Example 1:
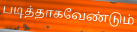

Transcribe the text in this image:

படித்தாகவேண்டும்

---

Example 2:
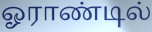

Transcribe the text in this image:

ஓராண்டில்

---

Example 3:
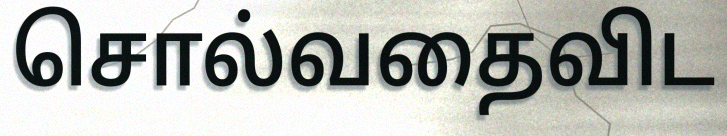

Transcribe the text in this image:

சொல்வதைவிட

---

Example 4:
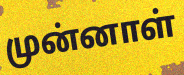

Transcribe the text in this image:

முன்னாள்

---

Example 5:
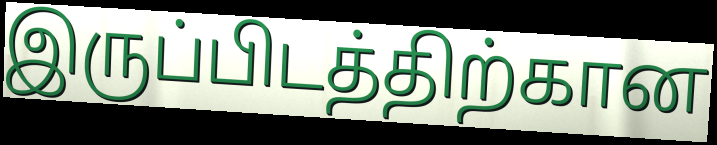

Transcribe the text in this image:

இருப்பிடத்திற்கான